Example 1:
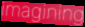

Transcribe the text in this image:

imagining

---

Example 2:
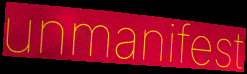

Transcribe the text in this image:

unmanifest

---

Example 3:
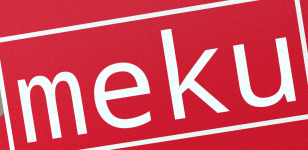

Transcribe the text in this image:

meku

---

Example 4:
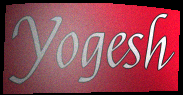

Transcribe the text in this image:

Yogesh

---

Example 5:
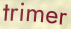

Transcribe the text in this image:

trimer